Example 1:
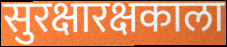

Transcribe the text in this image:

सुरक्षारक्षकाला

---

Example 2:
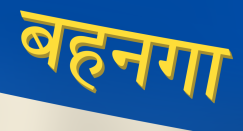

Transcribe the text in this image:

बहनगा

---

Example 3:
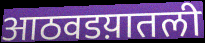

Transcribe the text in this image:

आठवडय़ातली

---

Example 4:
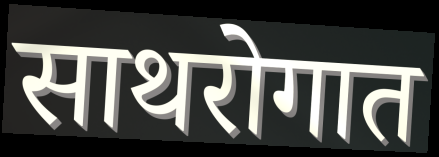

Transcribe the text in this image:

साथरोगात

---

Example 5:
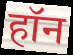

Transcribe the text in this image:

हॉन